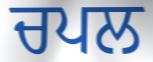
ਚਪਲ